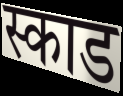
स्काड